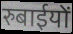
रुबाईयों